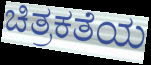
ಚಿತ್ರಕತೆಯ